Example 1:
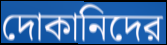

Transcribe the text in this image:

দোকানিদের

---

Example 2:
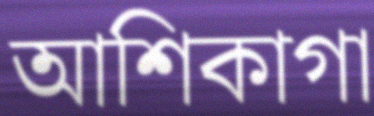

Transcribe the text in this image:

আশিকাগা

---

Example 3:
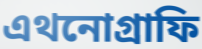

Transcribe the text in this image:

এথনোগ্রাফি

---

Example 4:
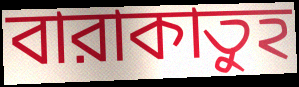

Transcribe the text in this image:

বারাকাতুহ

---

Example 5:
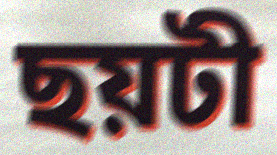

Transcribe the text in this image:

ছয়টী